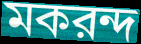
মকরন্দ